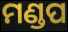
ମଣ୍ଡପ